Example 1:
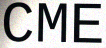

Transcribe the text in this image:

CME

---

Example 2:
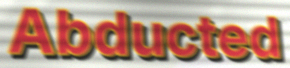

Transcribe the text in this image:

Abducted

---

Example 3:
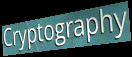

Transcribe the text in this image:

Cryptography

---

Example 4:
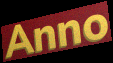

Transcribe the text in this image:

Anno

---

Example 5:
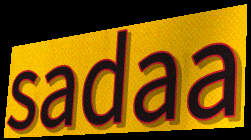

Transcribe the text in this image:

sadaa